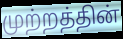
முற்றத்தின்